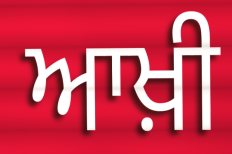
ਆਖ਼ੀ